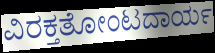
ವಿರಕ್ತತೋಂಟದಾರ್ಯ